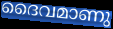
ദൈവമാണു